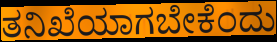
ತನಿಖೆಯಾಗಬೇಕೆಂದು